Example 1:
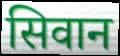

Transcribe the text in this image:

सिवान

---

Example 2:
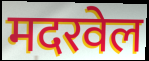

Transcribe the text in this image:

मदरवेल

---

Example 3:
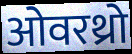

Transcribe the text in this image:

ओवरथ्रो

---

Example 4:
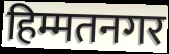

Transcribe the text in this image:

हिम्मतनगर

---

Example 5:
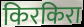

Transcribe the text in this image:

किरकिरा